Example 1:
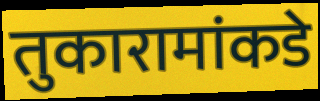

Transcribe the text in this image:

तुकारामांकडे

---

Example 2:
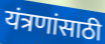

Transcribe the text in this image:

यंत्रणांसाठी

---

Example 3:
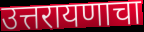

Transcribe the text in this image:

उत्तरायणाचा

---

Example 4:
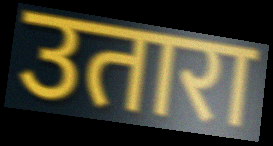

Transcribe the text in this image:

उतारा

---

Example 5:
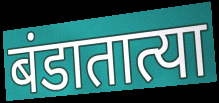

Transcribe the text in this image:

बंडातात्या